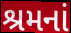
શ્રમનાં